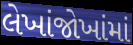
લેખાંજોખાંમાં